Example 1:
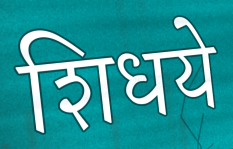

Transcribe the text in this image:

शिधये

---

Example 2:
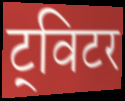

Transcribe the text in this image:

ट्‌विटर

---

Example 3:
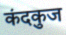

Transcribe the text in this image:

कंदकुज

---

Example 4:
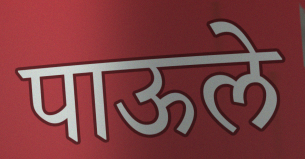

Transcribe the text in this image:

पाऊले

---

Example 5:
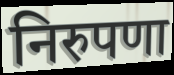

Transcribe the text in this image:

निरुपणा